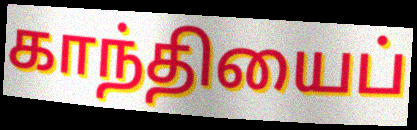
காந்தியைப்